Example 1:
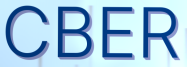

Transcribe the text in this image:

CBER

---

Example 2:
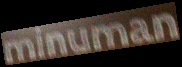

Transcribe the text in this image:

minuman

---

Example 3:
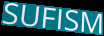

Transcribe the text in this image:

SUFISM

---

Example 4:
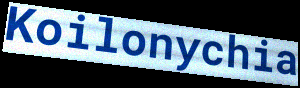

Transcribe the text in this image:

Koilonychia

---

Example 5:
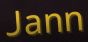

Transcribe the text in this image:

Jann